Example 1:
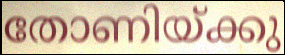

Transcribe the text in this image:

തോണിയ്ക്കു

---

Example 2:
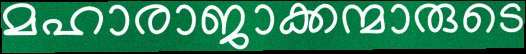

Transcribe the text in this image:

മഹാരാജാക്കന്മാരുടെ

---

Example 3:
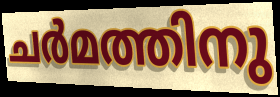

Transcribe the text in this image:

ചർമത്തിനു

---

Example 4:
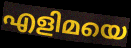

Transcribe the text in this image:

എളിമയെ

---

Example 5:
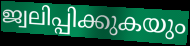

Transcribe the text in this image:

ജ്വലിപ്പിക്കുകയും